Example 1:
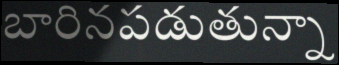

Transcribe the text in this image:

బారినపడుతున్నా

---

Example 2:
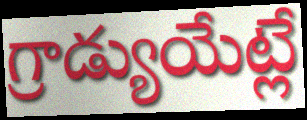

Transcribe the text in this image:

గ్రాడ్యుయేట్లే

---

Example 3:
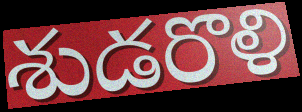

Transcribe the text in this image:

శుడరొళి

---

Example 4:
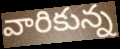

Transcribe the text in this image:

వారికున్న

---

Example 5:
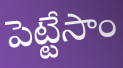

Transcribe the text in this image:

పెట్టేసాం